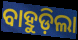
ବାହୁଡ଼ିଲା